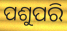
ପଶୁପରି